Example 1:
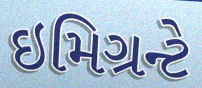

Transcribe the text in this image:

ઇમિગ્રન્ટે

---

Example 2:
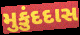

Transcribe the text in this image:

મુકુંદદાસ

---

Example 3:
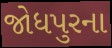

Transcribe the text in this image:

જોધપુરના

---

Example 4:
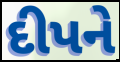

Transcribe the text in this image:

દીપને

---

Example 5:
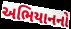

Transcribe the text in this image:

અભિયાનનો